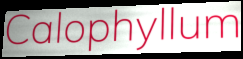
Calophyllum